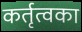
कर्तृत्वका